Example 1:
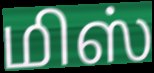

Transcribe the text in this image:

மிஸ்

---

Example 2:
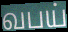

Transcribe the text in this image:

வபய்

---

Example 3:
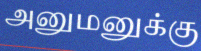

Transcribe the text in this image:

அனுமனுக்கு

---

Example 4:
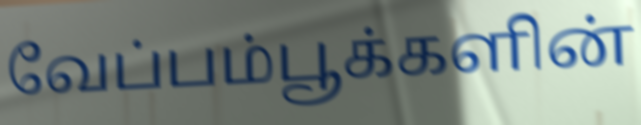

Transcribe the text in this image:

வேப்பம்பூக்களின்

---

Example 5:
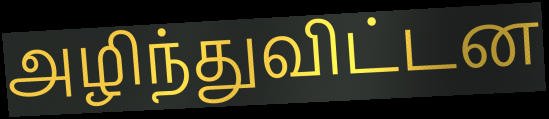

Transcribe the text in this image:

அழிந்துவிட்டன